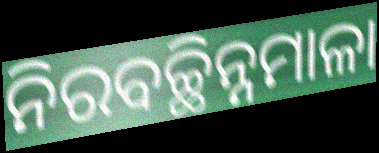
ନିରବଚ୍ଛିନ୍ନମାଳା